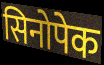
सिनोपेक